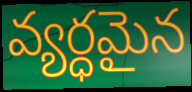
వ్యర్ధమైన